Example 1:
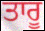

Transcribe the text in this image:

ਤਾਰੂ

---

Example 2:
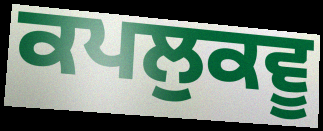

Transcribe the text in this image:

ਕਪਲੁਕਵੂ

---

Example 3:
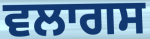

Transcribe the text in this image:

ਵਲਾਗਸ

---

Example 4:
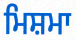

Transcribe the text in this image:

ਮਿਸ਼ਮਾ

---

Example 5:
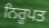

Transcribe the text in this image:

ਨਿਰੂਪਤ